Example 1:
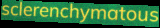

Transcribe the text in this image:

sclerenchymatous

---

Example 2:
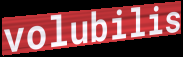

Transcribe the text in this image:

volubilis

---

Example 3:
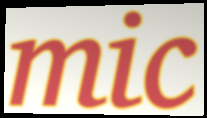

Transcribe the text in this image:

mic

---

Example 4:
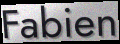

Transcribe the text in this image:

Fabien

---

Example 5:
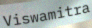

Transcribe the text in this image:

Viswamitra